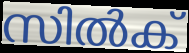
സിൽക്